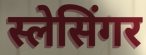
स्लेसिंगर